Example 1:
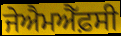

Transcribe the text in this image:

ਜੇਐਮਐੱਫ਼ਸੀ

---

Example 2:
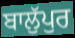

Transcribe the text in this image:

ਬਾਲੁੱਪੁਰ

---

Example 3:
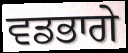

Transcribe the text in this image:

ਵਡਭਾਗੇ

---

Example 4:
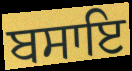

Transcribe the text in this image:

ਬਸਾਇ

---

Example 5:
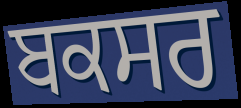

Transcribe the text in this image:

ਬਕਸਰ